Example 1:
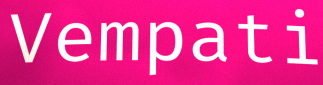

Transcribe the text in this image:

Vempati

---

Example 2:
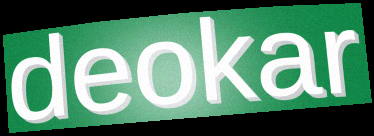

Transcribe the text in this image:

deokar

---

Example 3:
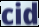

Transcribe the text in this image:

cid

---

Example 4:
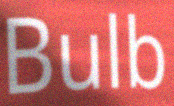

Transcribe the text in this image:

Bulb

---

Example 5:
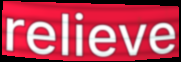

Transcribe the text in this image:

relieve